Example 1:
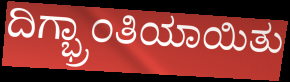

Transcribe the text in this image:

ದಿಗ್ಭ್ರಾಂತಿಯಾಯಿತು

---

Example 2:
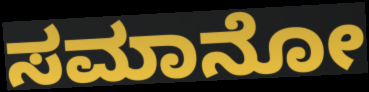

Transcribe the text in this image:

ಸಮಾನೋ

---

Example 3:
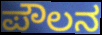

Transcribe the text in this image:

ಪೌಲನ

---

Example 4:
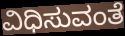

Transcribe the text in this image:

ವಿಧಿಸುವಂತೆ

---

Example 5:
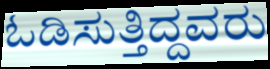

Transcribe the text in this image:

ಓಡಿಸುತ್ತಿದ್ದವರು